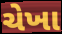
ચેખા